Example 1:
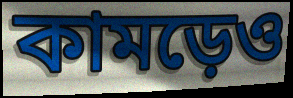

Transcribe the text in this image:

কামড়েও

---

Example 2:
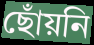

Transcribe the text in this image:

ছোঁয়নি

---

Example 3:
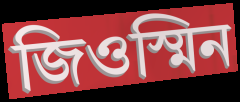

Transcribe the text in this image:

জিওস্মিন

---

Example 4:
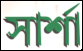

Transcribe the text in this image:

সার্শা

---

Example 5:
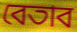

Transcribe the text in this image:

বেতাব